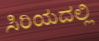
ಸಿರಿಯದಲ್ಲಿ